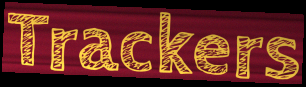
Trackers